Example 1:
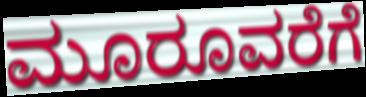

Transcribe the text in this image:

ಮೂರೂವರೆಗೆ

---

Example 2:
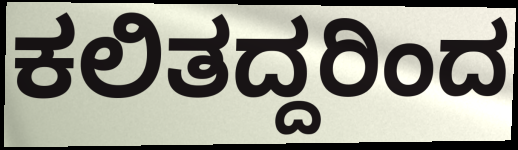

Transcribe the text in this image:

ಕಲಿತದ್ದರಿಂದ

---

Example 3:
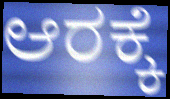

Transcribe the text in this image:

ಆರಕ್ಕೆ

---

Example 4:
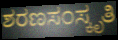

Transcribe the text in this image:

ಶರಣಸಂಸ್ಕೃತಿ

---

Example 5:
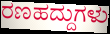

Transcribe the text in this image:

ರಣಹದ್ದುಗಳು